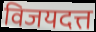
विजयदत्त